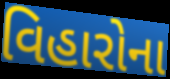
વિહારોના